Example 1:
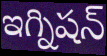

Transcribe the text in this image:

ఇగ్నిషన్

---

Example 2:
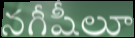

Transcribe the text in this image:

నగీషీలూ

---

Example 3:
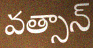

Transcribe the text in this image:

వత్సాన్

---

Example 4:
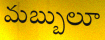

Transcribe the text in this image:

మబ్బులూ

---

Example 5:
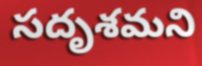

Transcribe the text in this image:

సదృశమని